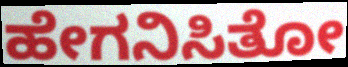
ಹೇಗನಿಸಿತೋ